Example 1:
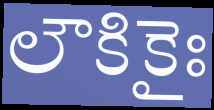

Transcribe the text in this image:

లౌకికైః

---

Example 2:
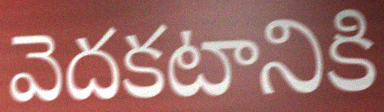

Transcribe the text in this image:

వెదకటానికి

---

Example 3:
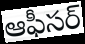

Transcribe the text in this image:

ఆఫీసర్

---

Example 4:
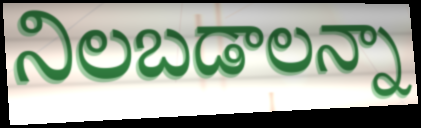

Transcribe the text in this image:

నిలబడాలన్నా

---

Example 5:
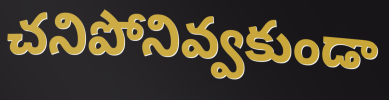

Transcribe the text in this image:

చనిపోనివ్వకుండా